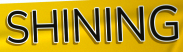
SHINING